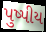
પુષ્પીય